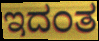
ಇದಂತ